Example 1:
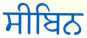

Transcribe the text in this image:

ਸੀਬਿਨ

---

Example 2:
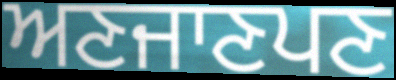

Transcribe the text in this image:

ਅਣਜਾਣਪਣ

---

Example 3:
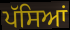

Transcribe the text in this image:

ਪੱਸਿਆਂ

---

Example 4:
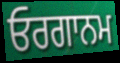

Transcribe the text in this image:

ਓਰਗਾਨਮ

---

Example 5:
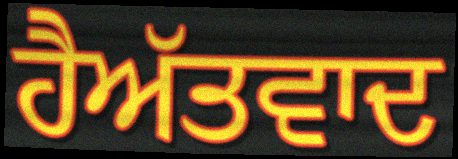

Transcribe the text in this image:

ਹੈਅੱਤਵਾਦ